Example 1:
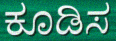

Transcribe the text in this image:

ಕೂಡಿಸ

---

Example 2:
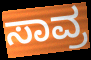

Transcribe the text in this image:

ಸಾವ್ರ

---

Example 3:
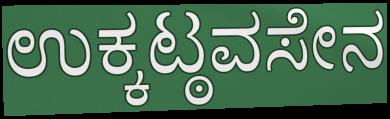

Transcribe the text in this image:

ಉಕ್ಕಟ್ಠವಸೇನ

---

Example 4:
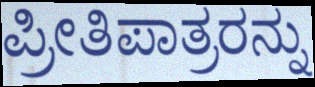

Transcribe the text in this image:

ಪ್ರೀತಿಪಾತ್ರರನ್ನು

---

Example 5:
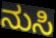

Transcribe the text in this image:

ನುಸಿ